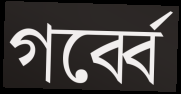
গর্ব্বে